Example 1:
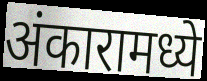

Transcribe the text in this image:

अंकारामध्ये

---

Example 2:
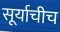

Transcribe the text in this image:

सूर्याचीच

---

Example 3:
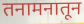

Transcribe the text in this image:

तनामनातून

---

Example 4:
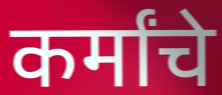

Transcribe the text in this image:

कर्मांचे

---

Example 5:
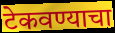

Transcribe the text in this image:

टेकवण्याचा